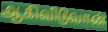
ஆகிவிடுவான்